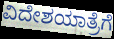
ವಿದೇಶಯಾತ್ರೆಗೆ